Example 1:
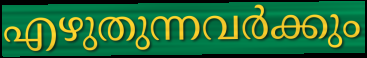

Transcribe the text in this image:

എഴുതുന്നവർക്കും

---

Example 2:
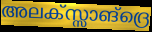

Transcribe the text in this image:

അലക്സ്സാങ്ദ്രെ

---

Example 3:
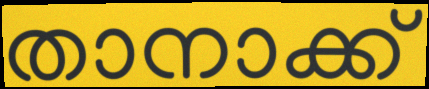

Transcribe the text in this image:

താനാക്ക്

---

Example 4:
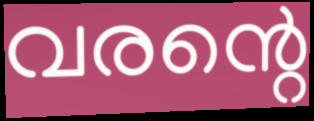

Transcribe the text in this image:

വരന്റെ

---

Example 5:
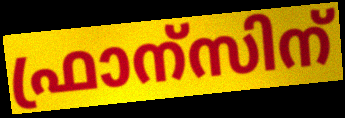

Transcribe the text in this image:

ഫ്രാന്സിന്